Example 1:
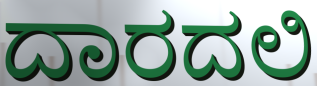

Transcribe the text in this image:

ದಾರದಲಿ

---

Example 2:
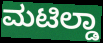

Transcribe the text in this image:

ಮಟಿಲ್ಡಾ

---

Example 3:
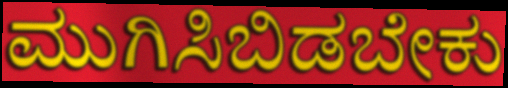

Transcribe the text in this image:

ಮುಗಿಸಿಬಿಡಬೇಕು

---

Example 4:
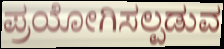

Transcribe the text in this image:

ಪ್ರಯೋಗಿಸಲ್ಪಡುವ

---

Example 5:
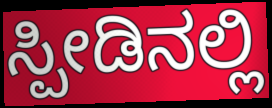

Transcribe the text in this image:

ಸ್ಪೀಡಿನಲ್ಲಿ